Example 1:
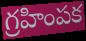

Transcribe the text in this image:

గ్రహింపక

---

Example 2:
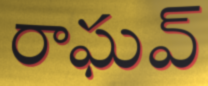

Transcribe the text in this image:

రాఘవ్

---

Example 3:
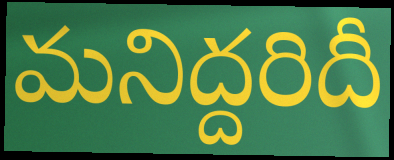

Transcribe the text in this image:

మనిద్దరిదీ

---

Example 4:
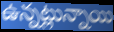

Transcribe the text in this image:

ఉన్నట్లున్నాయి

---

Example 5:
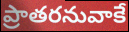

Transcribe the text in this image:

ప్రాతరనువాకే